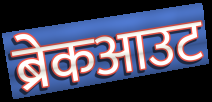
ब्रेकआउट